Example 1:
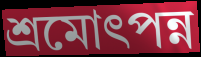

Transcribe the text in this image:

শ্রমোৎপন্ন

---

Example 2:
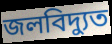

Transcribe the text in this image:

জলবিদ্যুত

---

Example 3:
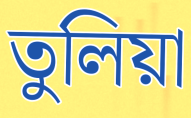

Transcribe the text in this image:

তুলিয়া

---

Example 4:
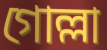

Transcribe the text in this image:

গোল্লা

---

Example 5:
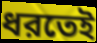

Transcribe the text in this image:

ধরতেই